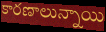
కారణాలున్నాయి